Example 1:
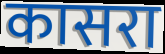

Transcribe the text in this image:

कासरा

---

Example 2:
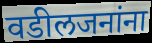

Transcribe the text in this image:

वडीलजनांना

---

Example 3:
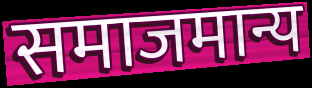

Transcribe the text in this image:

समाजमान्य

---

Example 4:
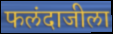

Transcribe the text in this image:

फलंदाजीला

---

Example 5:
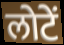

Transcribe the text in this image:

लोटें